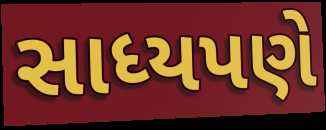
સાધ્યપણે